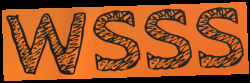
WSSS